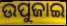
ଉପୁଜାଇ